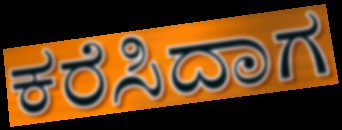
ಕರೆಸಿದಾಗ